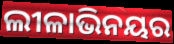
ଲୀଳାଭିନୟର